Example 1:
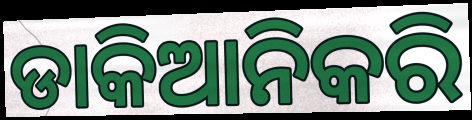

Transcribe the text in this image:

ଡାକିଆନିକରି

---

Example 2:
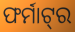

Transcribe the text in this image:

ଫର୍ମାଟ୍‌ର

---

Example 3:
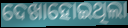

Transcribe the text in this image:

ଦେଖାହୋଇଥିଲା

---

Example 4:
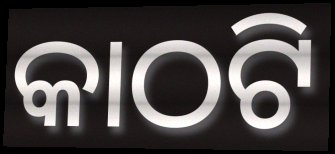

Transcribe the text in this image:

କାଠଟି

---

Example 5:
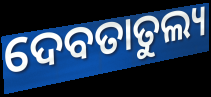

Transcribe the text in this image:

ଦେବତାତୁଲ୍ୟ